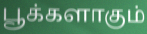
பூக்களாகும்